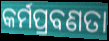
କର୍ମପ୍ରବଣତା